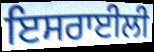
ਇਸਰਾਈਲੀ